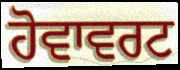
ਹੋਵਾਵਰਟ